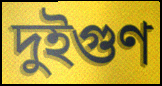
দুইগুণ